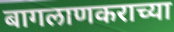
बागलाणकराच्या